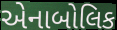
એનાબોલિક